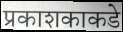
प्रकाशकाकडे